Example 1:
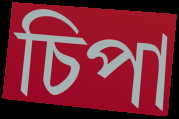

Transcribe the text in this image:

চিপা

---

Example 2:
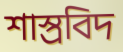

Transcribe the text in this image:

শাস্ত্ৰবিদ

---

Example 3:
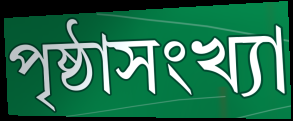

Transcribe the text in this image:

পৃষ্ঠাসংখ্যা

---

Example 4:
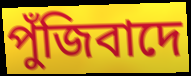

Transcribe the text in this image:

পুঁজিবাদে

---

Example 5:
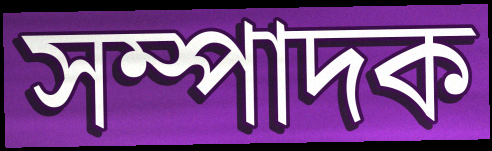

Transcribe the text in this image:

সম্পাদক